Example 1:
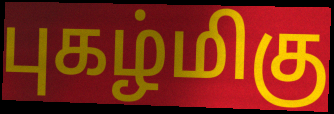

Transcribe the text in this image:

புகழ்மிகு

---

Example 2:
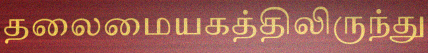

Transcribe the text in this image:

தலைமையகத்திலிருந்து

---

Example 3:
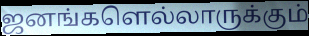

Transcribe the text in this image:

ஜனங்களெல்லாருக்கும்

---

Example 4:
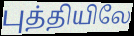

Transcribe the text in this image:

புத்தியிலே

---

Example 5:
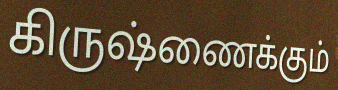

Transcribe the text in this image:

கிருஷ்ணைக்கும்